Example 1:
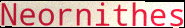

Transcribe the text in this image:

Neornithes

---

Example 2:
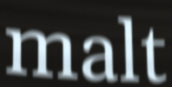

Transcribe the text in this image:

malt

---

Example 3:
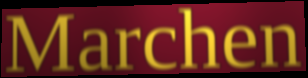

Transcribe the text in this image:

Marchen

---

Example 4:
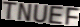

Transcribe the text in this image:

TNUEF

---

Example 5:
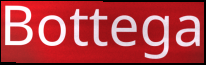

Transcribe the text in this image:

Bottega